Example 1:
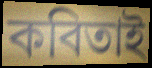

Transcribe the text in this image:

কবিতাই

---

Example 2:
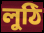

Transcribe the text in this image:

লুঠি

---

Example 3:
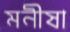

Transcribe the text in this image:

মনীষা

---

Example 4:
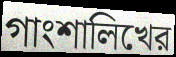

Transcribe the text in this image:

গাংশালিখের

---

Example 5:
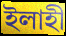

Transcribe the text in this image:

ইলাহী